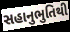
સહાનુભુતિથી